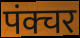
पंक्चर